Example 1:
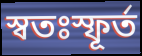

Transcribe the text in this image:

স্বতঃস্ফূর্ত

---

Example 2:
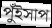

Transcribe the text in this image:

পুঁইসাপ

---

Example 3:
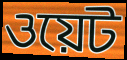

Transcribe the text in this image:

ওয়েট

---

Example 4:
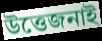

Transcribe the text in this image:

উত্তেজনাই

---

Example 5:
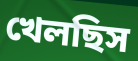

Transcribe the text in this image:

খেলছিস